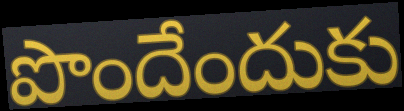
పొందేందుకు